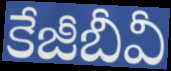
కేజీబీవీ